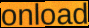
onload